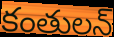
కంతులన్